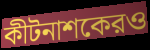
কীটনাশকেরও